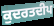
ਕੁਦਰਤਦੀਪ